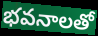
భవనాలతో